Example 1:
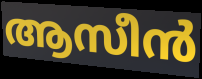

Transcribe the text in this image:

ആസീൻ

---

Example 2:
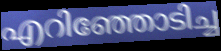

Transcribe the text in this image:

എറിഞ്ഞോടിച്ച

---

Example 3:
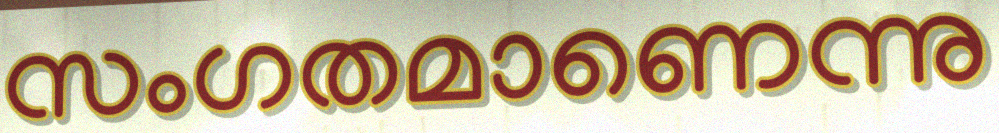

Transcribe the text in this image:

സംഗതമാണെന്നു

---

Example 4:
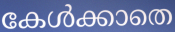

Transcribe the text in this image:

കേൾക്കാതെ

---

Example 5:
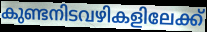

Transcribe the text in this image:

കുണ്ടനിടവഴികളിലേക്ക്